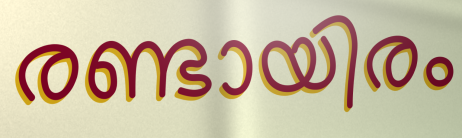
രണ്ടായിരം